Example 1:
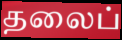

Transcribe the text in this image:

தலைப்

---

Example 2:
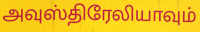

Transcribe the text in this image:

அவுஸ்திரேலியாவும்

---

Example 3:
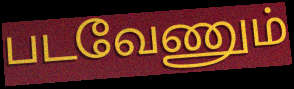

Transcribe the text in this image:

படவேணும்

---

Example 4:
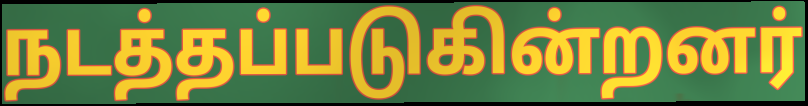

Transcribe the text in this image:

நடத்தப்படுகின்றனர்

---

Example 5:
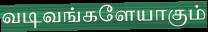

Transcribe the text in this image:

வடிவங்களேயாகும்